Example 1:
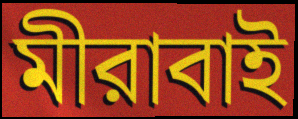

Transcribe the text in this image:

মীরাবাই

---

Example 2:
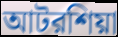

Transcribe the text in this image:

আটরশিয়া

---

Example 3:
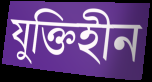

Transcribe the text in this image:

যুক্তিহীন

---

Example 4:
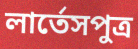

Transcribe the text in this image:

লার্তেসপুত্র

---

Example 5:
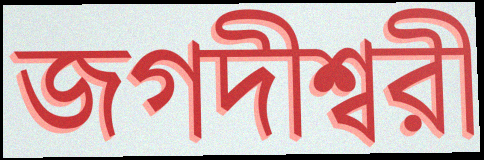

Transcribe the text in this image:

জগদীশ্বরী